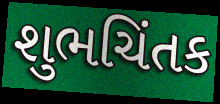
શુભચિંતક